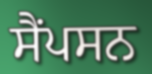
ਸੈਂਪਸਨ